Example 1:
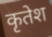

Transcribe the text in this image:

कृतेश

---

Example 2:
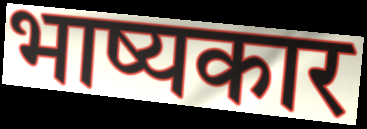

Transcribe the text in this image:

भाष्यकार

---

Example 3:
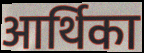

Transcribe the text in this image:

आर्थिका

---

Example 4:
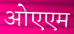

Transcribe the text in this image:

ओएएम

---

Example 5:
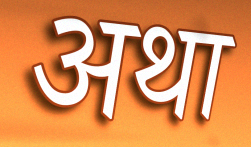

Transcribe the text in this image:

अथा